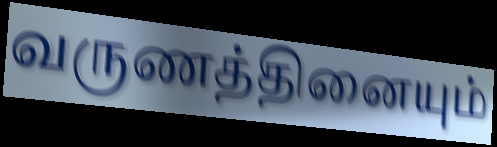
வருணத்தினையும்